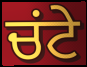
ਚਂਟੇ